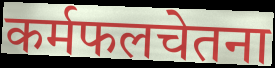
कर्मफलचेतना